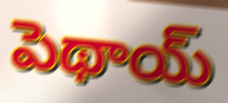
పెథాయ్